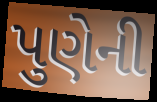
પુણેની